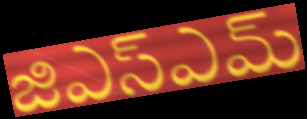
జిఎస్ఎమ్